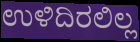
ಉಳಿದಿರಲಿಲ್ಲ